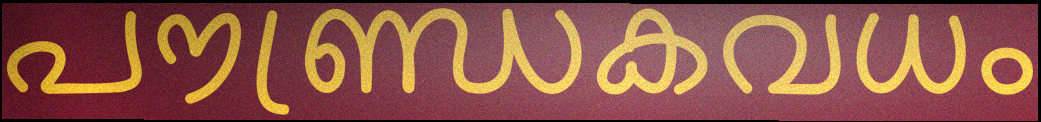
പൗണ്ഡ്രകവധം